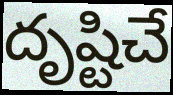
దృష్టిచే